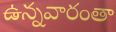
ఉన్నవారంతా